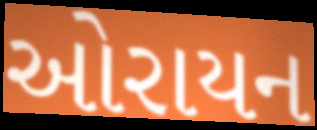
ઓરાયન